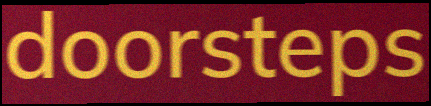
doorsteps